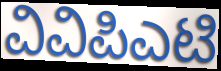
ವಿವಿಪಿಎಟಿ